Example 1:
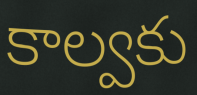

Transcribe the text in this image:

కాల్వకు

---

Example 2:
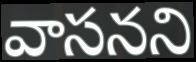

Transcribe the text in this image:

వాసనని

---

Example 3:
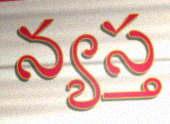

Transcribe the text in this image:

న్యస్త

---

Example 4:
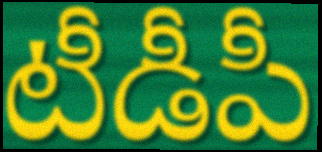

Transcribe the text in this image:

టీడీపీ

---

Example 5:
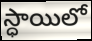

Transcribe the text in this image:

స్ధాయిలో